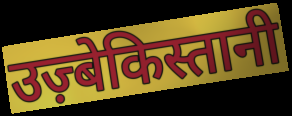
उज़्बेकिस्तानी